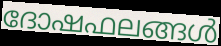
ദോഷഫലങ്ങൾ